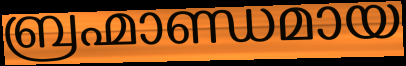
ബ്രഹ്മാണ്ഡമായ